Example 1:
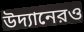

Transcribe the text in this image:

উদ্যানেরও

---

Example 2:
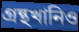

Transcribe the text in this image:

গ্রন্থখানিও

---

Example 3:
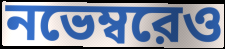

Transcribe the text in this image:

নভেম্বরেও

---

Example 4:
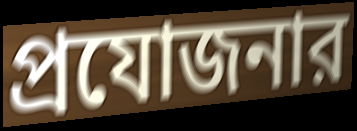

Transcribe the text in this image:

প্রযোজনার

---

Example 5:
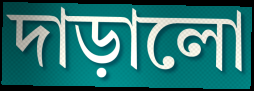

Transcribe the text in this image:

দাড়ালো